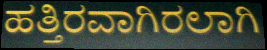
ಹತ್ತಿರವಾಗಿರಲಾಗಿ